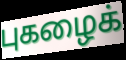
புகழைக்